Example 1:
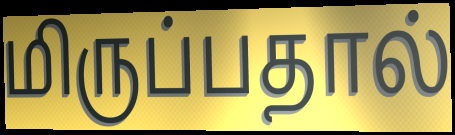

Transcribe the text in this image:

மிருப்பதால்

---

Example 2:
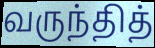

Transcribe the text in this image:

வருந்தித்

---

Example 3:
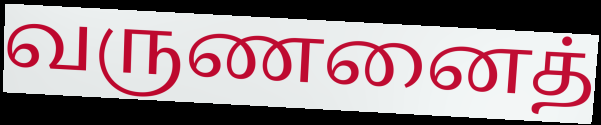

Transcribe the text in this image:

வருணனைத்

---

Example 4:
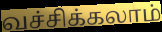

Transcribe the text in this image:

வச்சிக்கலாம்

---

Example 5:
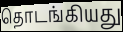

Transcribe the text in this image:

தொடங்கியது